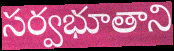
సర్వభూతాని